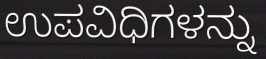
ಉಪವಿಧಿಗಳನ್ನು